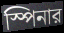
স্পিনার